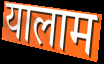
यालाम